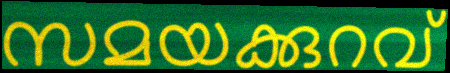
സമയക്കുറവ്